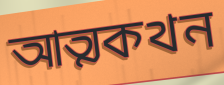
আত্মকথন